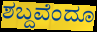
ಶಬ್ದವೆಂದೂ